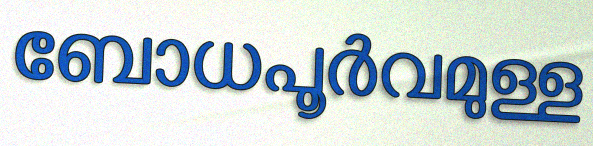
ബോധപൂർവമുള്ള